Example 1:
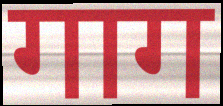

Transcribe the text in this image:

गाग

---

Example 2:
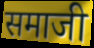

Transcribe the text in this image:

समाजी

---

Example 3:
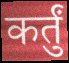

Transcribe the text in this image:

कर्तुं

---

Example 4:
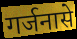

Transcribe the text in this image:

गर्जनासे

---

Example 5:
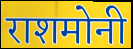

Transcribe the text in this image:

राशमोनी